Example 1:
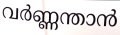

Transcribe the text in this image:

വർണ്ണന്താൻ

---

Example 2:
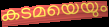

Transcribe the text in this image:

കടമയെയും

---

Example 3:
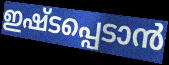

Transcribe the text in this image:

ഇഷ്ടപ്പെടാൻ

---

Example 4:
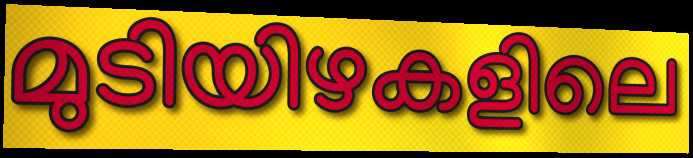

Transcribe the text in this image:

മുടിയിഴകളിലെ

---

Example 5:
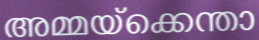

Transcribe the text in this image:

അമ്മയ്‌ക്കെന്താ